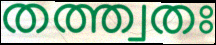
തത്ത്വതഃ